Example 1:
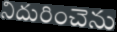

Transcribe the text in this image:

నిదురించెను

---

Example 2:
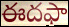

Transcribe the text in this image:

ఈదఫా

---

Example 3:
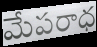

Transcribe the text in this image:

మేపరాధ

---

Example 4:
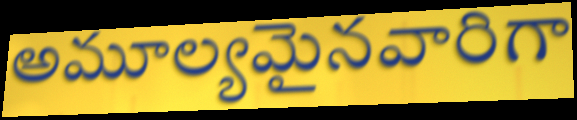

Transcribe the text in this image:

అమూల్యమైనవారిగా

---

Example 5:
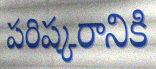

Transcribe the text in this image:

పరిష్కరానికి